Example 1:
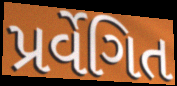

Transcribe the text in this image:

પ્રર્વેગિત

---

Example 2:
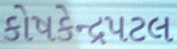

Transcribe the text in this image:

કોષકેન્દ્રપટલ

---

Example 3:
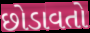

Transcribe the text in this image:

છોડાવતો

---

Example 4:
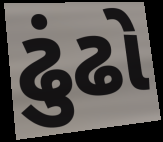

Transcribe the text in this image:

ઢુંઢો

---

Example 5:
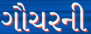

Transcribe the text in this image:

ગૌચરની